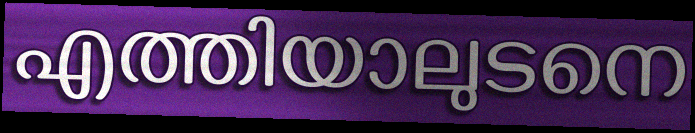
എത്തിയാലുടനെ